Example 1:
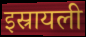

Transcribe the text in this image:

इस्रायली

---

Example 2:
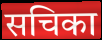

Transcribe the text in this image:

सचिका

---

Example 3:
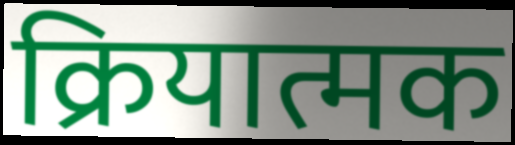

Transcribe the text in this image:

क्रियात्‍मक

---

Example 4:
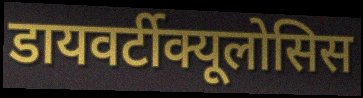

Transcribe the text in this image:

डायवर्टीक्यूलोसिस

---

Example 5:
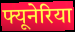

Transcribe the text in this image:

फ्यूनेरिया